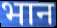
भान